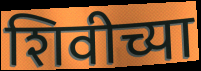
शिवीच्या